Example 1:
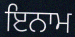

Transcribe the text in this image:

ਇਨਾਮ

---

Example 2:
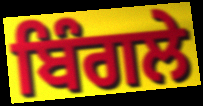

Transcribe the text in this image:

ਬਿੰਗਲੇ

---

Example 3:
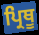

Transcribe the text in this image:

ਪ੍ਰਿਥੂ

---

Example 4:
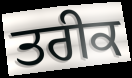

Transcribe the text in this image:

ਤਰੀਕ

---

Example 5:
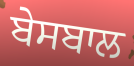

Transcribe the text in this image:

ਬੇਸਬਾਲ